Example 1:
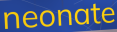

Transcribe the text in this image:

neonate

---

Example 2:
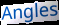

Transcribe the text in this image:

Angles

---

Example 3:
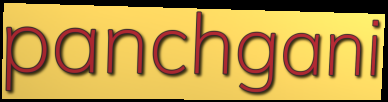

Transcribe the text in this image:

panchgani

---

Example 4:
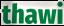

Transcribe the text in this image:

thawi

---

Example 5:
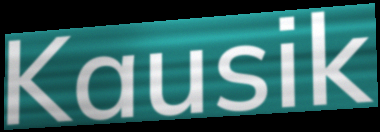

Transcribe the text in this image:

Kausik